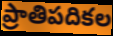
ప్రాతిపదికల